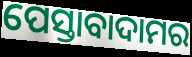
ପେସ୍ତାବାଦାମର